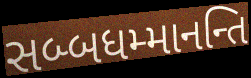
સબ્બધમ્માનન્તિ